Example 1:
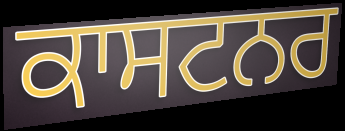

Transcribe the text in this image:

ਕਾਸਟਨਰ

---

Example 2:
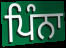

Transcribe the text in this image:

ਪਿੰਨਾ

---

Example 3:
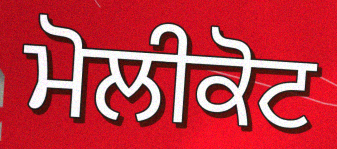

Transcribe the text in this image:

ਮੋਲੀਕੋਟ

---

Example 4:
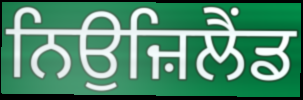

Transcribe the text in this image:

ਨਿਉਜ਼ਿਲੈਂਡ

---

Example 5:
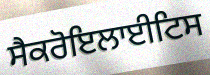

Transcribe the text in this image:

ਸੈਕਰੋਇਲਾਈਟਿਸ